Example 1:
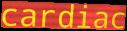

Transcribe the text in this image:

cardiac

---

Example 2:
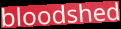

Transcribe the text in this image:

bloodshed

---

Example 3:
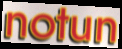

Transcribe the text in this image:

notun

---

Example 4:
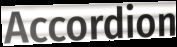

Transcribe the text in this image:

Accordion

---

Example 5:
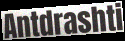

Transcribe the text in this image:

Antdrashti